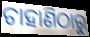
ଚାହାଣିଠାରୁ